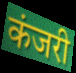
कंजरी